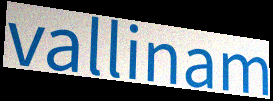
vallinam